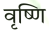
वृष्णि